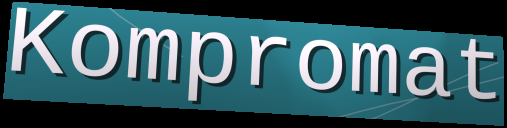
Kompromat